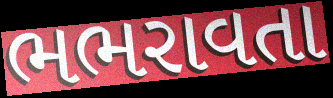
ભભરાવતા